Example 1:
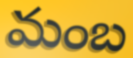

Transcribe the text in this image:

మంబ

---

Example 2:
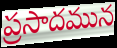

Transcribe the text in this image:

ప్రసాదమున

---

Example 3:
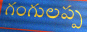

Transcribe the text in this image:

గంగులప్ప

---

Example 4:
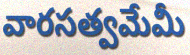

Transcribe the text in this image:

వారసత్వమేమీ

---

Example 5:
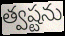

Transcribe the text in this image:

త్వష్టను